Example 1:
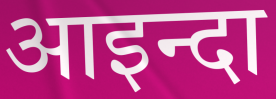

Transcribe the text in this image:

आइन्दा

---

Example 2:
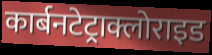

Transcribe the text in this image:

कार्बनटेट्राक्लोराइड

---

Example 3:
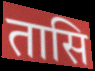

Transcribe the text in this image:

तासि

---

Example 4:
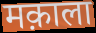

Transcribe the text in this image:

मक़ाला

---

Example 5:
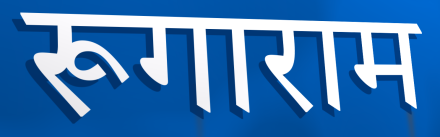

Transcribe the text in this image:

रूगाराम